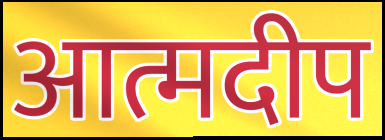
आत्मदीप